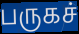
பருகச்